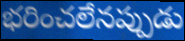
భరించలేనప్పుడు